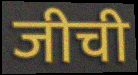
जीची